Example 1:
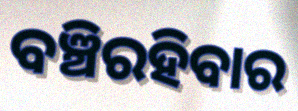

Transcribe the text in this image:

ବଞ୍ଚିରହିବାର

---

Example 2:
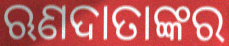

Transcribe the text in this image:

ଋଣଦାତାଙ୍କର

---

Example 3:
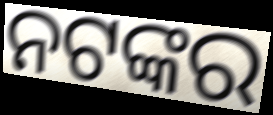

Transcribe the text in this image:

ନଟଙ୍କର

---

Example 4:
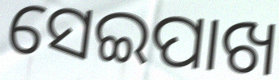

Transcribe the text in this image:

ସେଇପାଖ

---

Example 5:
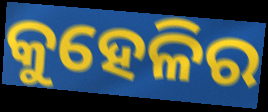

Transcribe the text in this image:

କୁହେଳିର